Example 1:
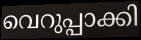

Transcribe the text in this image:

വെറുപ്പാക്കി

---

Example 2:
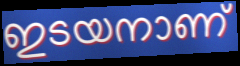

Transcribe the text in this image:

ഇടയനാണ്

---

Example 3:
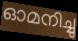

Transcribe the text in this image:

ഓമനിച്ചു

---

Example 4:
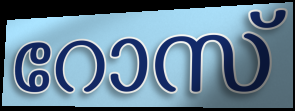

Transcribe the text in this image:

റോസ്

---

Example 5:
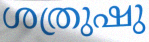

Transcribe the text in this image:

ശത്രുഷു